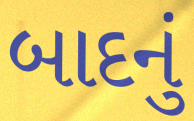
બાદનું